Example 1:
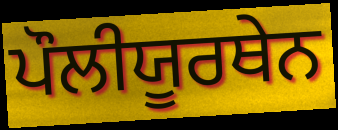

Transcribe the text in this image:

ਪੌਲੀਯੂਰਥੇਨ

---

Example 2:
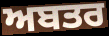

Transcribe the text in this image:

ਅਬਤਰ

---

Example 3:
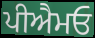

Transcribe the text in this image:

ਪੀਐਮਓ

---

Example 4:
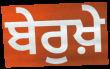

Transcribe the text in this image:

ਬੇਰੁਖ਼ੇ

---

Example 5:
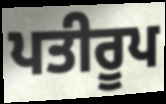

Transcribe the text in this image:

ਪਤੀਰੂਪ